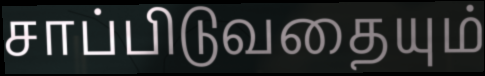
சாப்பிடுவதையும்